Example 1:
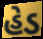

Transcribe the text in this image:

હેડ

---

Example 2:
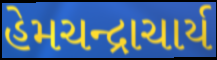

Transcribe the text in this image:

હેમચન્દ્રાચાર્ય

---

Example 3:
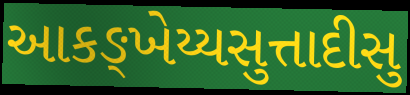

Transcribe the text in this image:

આકઙ્ખેય્યસુત્તાદીસુ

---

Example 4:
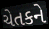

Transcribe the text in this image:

ચેતકને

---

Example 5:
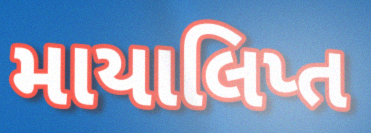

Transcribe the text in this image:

માયાલિપ્ત